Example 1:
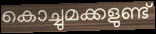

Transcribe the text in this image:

കൊച്ചുമക്കളുണ്ട്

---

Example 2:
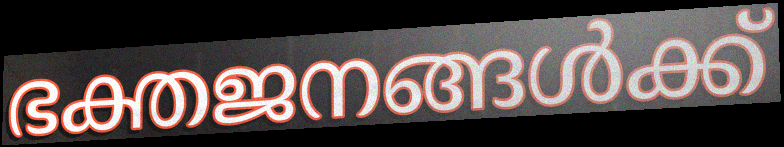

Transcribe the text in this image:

ഭക്തജനങ്ങൾക്ക്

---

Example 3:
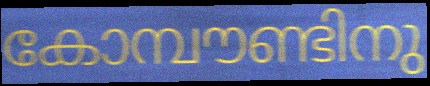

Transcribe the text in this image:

കോമ്പൗണ്ടിനു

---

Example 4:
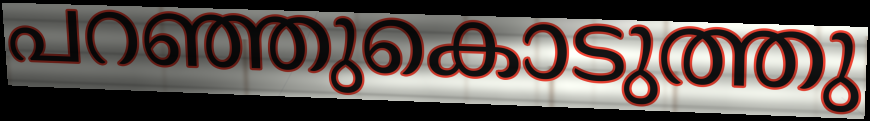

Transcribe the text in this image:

പറഞ്ഞുകൊടുത്തു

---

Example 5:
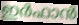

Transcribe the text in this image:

ഇർഫാൻ